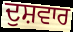
ਦੁਸ਼ਵਾਰ